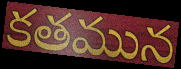
కతమున